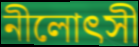
নীলোৎসী